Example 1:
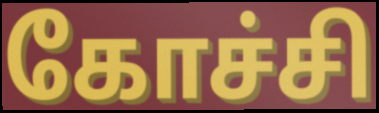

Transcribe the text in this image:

கோச்சி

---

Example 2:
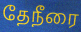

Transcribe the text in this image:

தேநீரை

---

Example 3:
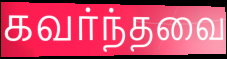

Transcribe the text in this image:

கவர்ந்தவை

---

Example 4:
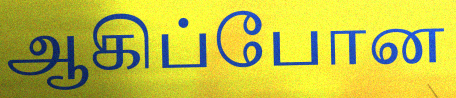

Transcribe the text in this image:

ஆகிப்போன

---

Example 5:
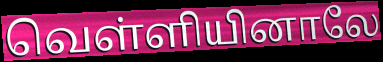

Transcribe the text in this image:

வெள்ளியினாலே